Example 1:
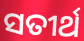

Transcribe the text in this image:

ସତୀର୍ଥ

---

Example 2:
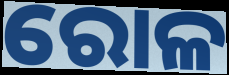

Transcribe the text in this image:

ରୋଳ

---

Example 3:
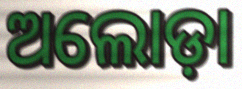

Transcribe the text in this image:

ଅଲୋଡ଼ା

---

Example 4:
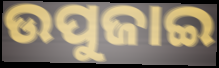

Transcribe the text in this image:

ଉପୁଜାଇ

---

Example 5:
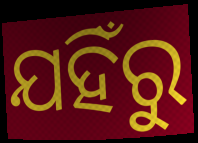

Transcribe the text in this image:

ଯହିଁରୁ